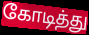
கோடித்து